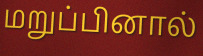
மறுப்பினால்